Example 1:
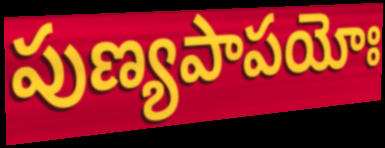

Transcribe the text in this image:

పుణ్యపాపయోః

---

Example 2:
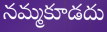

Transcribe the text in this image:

నమ్మకూడదు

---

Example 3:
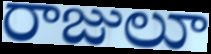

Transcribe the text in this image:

రాజులూ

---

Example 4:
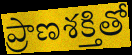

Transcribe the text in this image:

ప్రాణశక్తితో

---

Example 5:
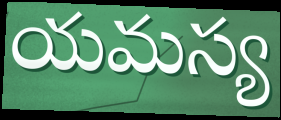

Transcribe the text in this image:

యమస్య